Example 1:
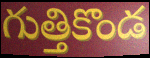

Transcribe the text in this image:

గుత్తికొండ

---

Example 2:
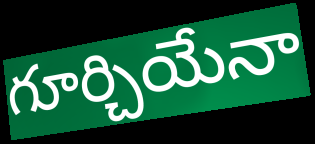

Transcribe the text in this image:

గూర్చియేనా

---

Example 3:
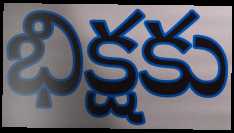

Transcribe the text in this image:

భిక్షకు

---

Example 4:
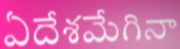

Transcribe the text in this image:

ఏదేశమేగినా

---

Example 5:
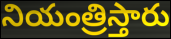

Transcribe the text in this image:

నియంత్రిస్తారు